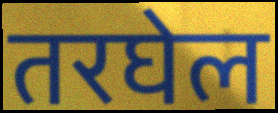
तरघेल